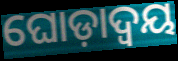
ଘୋଡ଼ାଦ୍ୱୟ